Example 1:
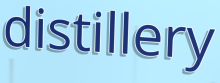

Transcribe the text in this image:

distillery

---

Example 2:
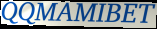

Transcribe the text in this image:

QQMAMIBET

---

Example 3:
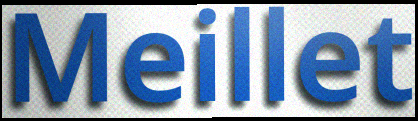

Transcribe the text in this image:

Meillet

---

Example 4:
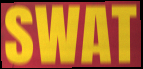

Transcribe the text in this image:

SWAT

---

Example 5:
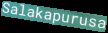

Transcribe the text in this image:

Salakapurusa